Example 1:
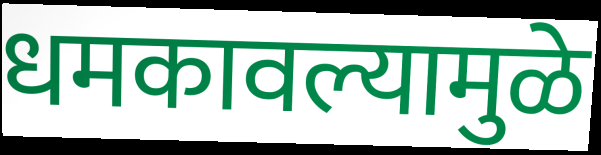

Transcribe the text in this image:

धमकावल्यामुळे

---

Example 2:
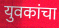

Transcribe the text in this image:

युवकांचा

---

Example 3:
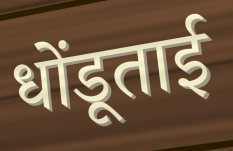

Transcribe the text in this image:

धोंडूताई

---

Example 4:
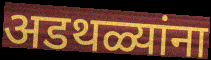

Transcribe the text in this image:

अडथळ्यांना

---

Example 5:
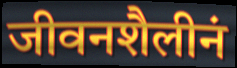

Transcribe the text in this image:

जीवनशैलीनं